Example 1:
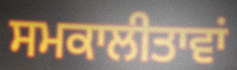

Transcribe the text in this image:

ਸਮਕਾਲੀਤਾਵਾਂ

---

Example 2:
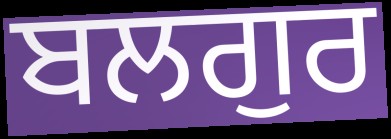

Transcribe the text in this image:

ਬਲਗੁਰ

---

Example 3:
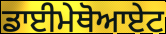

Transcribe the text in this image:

ਡਾਈਮੇਥੋਆਏਟ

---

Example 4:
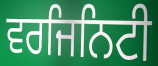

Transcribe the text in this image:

ਵਰਜਿਨਿਟੀ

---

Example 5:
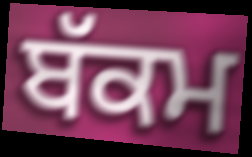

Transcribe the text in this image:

ਬੱਕਮ